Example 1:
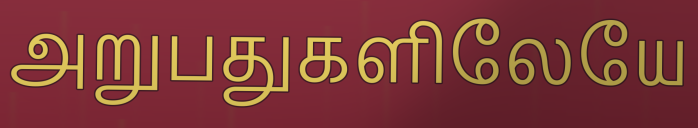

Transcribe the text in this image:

அறுபதுகளிலேயே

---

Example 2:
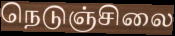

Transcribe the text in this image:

நெடுஞ்சிலை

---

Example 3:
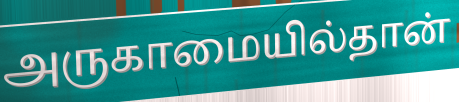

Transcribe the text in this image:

அருகாமையில்தான்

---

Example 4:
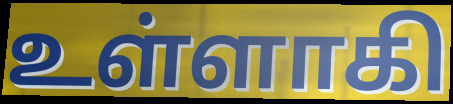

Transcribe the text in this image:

உள்ளாகி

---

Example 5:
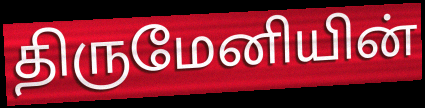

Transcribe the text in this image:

திருமேனியின்